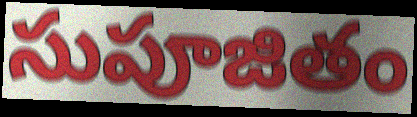
సుపూజితం